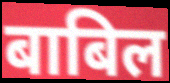
बाबिल